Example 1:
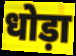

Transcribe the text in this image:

धोड़ा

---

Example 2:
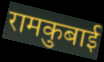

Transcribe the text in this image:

रामकुबाई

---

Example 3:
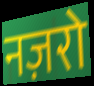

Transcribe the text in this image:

नज़रो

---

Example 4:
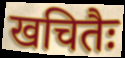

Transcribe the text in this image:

खचितैः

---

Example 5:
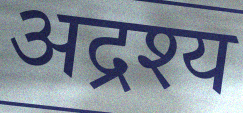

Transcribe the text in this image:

अद्रश्य